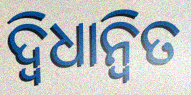
ଦ୍ଵିଧାନ୍ୱିତ